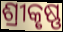
ଶ୍ରୀକୃଷ୍ଣ